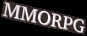
MMORPG